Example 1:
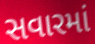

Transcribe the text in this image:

સવારમાં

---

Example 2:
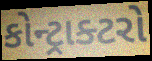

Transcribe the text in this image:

કોન્ટ્રાક્ટરો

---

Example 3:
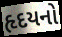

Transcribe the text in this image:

હૃદયનો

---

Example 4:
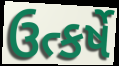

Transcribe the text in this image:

ઉત્કર્ષે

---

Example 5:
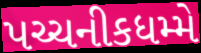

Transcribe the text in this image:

પચ્ચનીકધમ્મે